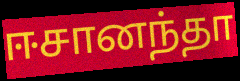
ஈசானந்தா